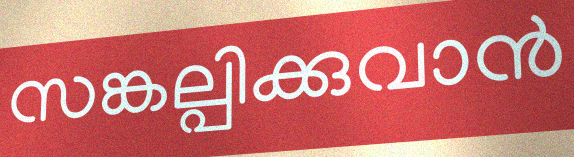
സങ്കല്പിക്കുവാൻ